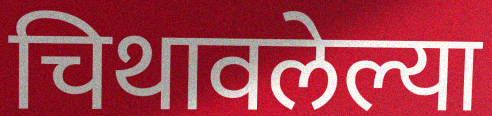
चिथावलेल्या